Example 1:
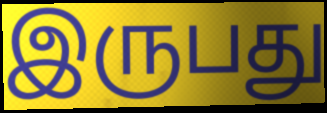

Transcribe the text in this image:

இருபது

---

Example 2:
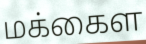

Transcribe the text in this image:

மக்கைள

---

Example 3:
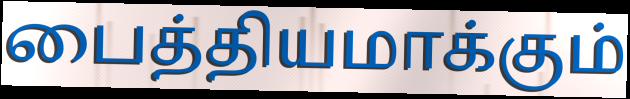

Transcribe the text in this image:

பைத்தியமாக்கும்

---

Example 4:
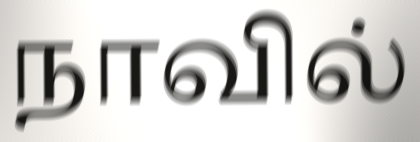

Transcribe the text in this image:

நாவில்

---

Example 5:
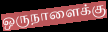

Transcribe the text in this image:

ஒருநாளைக்கு